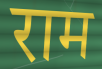
राम